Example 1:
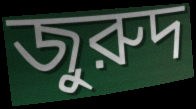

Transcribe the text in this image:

জুরুদ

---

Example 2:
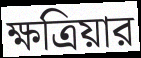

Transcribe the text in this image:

ক্ষত্রিয়ার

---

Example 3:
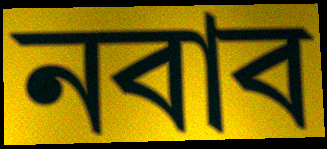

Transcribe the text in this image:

নবাব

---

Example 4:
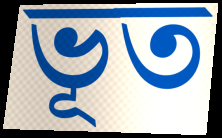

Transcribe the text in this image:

ভূত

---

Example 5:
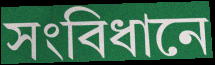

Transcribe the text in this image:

সংবিধানে